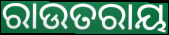
ରାଉତରାୟ